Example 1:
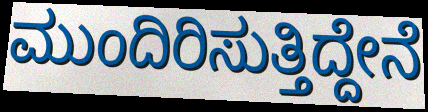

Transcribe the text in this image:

ಮುಂದಿರಿಸುತ್ತಿದ್ದೇನೆ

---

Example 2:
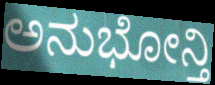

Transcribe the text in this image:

ಅನುಭೋನ್ತಿ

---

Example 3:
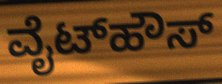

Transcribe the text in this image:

ವೈಟ್‌ಹೌಸ್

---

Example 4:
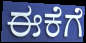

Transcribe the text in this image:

ಈಕೆಗೆ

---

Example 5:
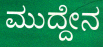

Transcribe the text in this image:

ಮುದ್ದೇನ